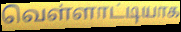
வெள்ளாட்டியாக